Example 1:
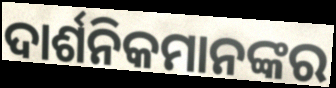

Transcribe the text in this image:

ଦାର୍ଶନିକମାନଙ୍କର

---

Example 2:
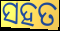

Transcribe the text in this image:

ସହତ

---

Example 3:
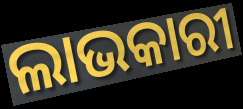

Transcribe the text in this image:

ଲାଭକାରୀ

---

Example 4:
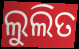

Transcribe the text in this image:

ଲୁଲିତ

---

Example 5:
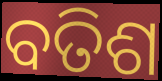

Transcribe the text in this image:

ବତିଶ